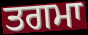
ਤਗਮਾ